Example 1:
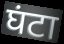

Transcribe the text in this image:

घंटा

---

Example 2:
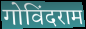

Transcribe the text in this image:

गोविंदराम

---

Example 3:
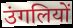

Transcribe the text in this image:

उंगलियों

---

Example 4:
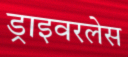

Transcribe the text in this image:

ड्राइवरलेस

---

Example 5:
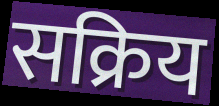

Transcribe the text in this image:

सक्रिय